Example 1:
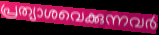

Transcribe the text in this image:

പ്രത്യാശവെക്കുന്നവർ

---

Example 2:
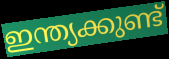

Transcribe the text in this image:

ഇന്ത്യക്കുണ്ട്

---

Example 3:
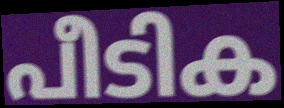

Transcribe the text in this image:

പീടിക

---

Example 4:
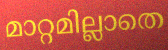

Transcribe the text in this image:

മാറ്റമില്ലാതെ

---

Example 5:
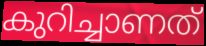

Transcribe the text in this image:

കുറിച്ചാണത്